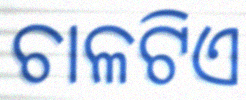
ଚାଳଟିଏ